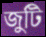
জুটি